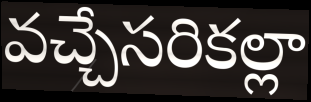
వచ్చేసరికల్లా